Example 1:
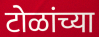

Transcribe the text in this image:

टोळांच्या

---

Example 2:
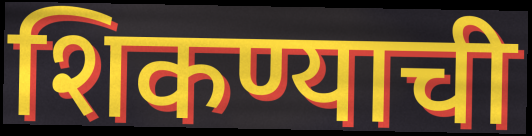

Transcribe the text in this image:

शिकण्याची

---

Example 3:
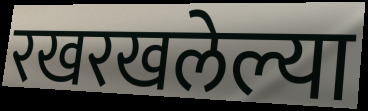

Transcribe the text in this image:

रखरखलेल्या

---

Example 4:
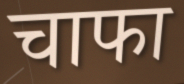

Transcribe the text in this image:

चाफा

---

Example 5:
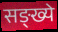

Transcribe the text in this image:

सङ्ख्ये